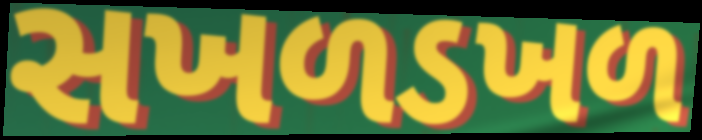
સખળડખળ